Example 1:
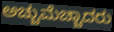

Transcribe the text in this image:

ಅಚ್ಚುಮೆಚ್ಚಾದರು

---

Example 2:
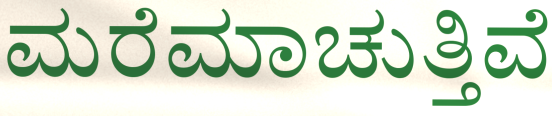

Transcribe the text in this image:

ಮರೆಮಾಚುತ್ತಿವೆ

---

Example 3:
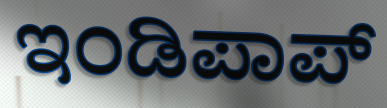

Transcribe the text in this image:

ಇಂಡಿಪಾಪ್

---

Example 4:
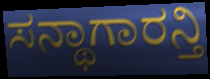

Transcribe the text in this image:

ಸನ್ಥಾಗಾರನ್ತಿ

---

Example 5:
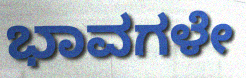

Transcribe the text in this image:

ಭಾವಗಳೇ